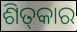
ଶିତ୍‍କାର